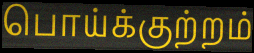
பொய்க்குற்றம்